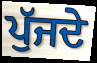
ਪੁੱਜਦੇ